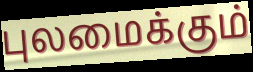
புலமைக்கும்